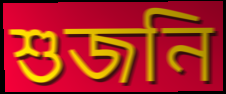
শুজনি